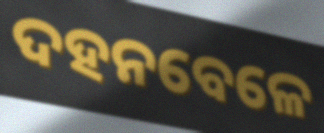
ଦହନବେଳେ